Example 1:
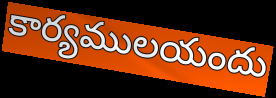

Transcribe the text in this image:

కార్యములయందు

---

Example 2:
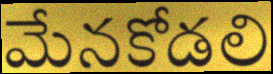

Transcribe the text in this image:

మేనకోడలి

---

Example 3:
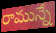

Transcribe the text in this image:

రామున్నే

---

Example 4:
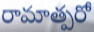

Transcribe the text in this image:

రామాత్పరో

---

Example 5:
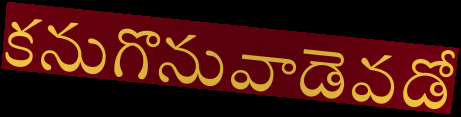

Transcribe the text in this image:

కనుగొనువాడెవడో